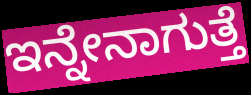
ಇನ್ನೇನಾಗುತ್ತೆ